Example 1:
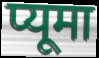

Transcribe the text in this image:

प्यूमा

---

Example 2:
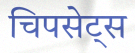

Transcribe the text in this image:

चिपसेट्स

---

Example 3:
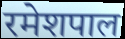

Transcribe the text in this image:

रमेशपाल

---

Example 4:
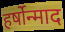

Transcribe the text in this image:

हर्षोन्माद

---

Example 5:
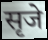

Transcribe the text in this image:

सृजे